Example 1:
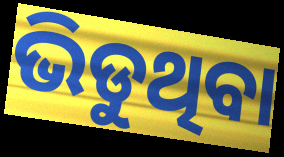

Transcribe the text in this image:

ଭିଡୁଥିବା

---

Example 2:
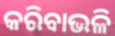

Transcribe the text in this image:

କରିବାଭଳି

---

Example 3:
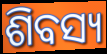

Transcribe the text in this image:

ଶିବସ୍ଯ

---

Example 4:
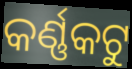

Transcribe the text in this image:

କର୍ଣ୍ଣକଟୁ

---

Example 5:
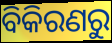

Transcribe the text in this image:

ବିକିରଣରୁ